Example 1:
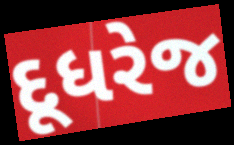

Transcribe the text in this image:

દૂધરેજ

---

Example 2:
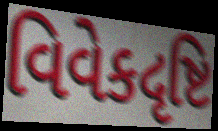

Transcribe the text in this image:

વિવેકદૃષ્ટિ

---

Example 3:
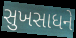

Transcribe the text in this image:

સુખસાધને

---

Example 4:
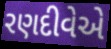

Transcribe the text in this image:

રણદીવેએ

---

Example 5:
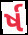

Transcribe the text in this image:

ર્ષ